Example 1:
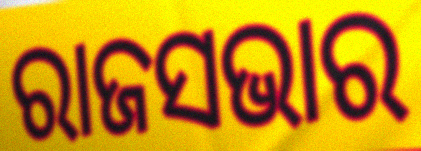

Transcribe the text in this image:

ରାଜସଭାର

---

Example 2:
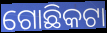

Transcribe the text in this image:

ଗୋଛିକଟା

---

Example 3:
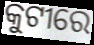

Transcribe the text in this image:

କୁଟୀରେ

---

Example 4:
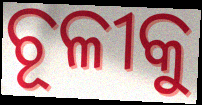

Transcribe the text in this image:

ଚୂଳୀକୁ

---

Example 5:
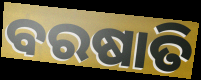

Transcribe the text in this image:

ବରଷାତି